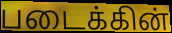
படைக்கின்